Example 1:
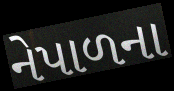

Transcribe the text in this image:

નેપાળના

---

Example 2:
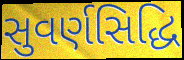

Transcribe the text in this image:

સુવર્ણસિદ્ધિ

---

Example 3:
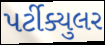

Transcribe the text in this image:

પર્ટીક્યુલર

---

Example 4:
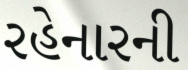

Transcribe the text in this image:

રહેનારની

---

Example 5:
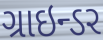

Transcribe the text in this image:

ગ્રાઇન્ડર